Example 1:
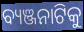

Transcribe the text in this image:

ବ୍ୟଞ୍ଜନାଟିକୁ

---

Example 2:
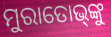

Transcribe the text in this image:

ମୁରାତୋଭ୍‌ଙ୍କୁ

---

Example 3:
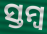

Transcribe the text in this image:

ସ୍ତମ୍ବ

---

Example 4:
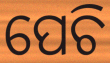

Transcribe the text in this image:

ପେଚି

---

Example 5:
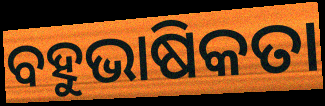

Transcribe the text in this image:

ବହୁଭାଷିକତା